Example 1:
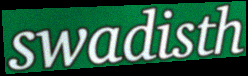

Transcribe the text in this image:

swadisth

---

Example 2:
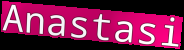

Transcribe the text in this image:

Anastasi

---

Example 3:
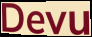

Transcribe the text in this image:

Devu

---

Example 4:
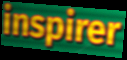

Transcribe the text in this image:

inspirer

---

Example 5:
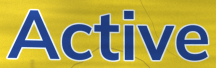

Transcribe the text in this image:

Active